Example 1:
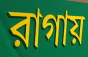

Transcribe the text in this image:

রাগায়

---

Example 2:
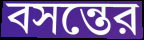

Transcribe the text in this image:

বসন্তের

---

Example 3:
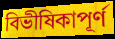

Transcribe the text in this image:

বিভীষিকাপূর্ণ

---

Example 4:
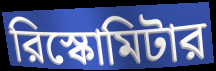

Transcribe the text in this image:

রিস্কোমিটার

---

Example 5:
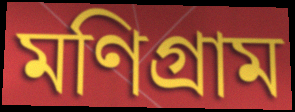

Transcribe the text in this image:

মণিগ্রাম